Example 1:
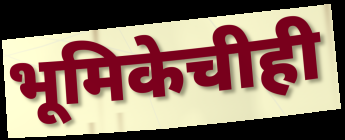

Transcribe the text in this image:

भूमिकेचीही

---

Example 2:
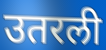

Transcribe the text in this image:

उतरली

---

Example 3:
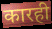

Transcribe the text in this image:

कारही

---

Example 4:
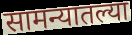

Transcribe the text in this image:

सामन्यातल्या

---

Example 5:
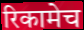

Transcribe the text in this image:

रिकामेच